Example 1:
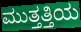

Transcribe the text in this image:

ಮುತ್ತತ್ತಿಯ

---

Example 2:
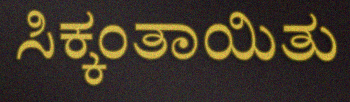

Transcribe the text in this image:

ಸಿಕ್ಕಂತಾಯಿತು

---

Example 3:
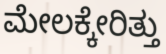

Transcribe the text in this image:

ಮೇಲಕ್ಕೇರಿತ್ತು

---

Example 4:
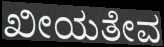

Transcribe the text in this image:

ಖೀಯತೇವ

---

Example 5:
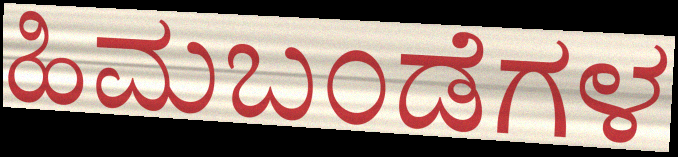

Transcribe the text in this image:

ಹಿಮಬಂಡೆಗಳ